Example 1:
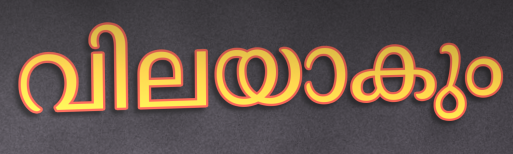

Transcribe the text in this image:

വിലയാകും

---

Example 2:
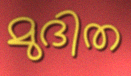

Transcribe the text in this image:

മുദിത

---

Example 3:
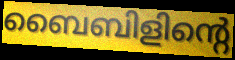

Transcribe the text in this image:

ബൈബിളിന്റെ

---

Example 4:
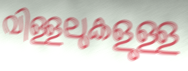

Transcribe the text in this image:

വിള്ളലുകളുള്ള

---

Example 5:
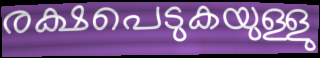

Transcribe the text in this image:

രക്ഷപെടുകയുള്ളു